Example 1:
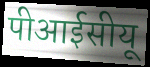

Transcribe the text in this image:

पीआईसीयू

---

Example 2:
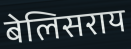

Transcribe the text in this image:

बेलिसराय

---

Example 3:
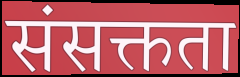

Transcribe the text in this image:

संसक्तता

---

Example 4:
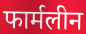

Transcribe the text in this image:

फार्मलीन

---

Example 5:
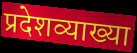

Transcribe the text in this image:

प्रदेशव्याख्या